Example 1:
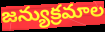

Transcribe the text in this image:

జన్యుక్రమాల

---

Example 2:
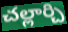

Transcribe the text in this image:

చల్లార్చి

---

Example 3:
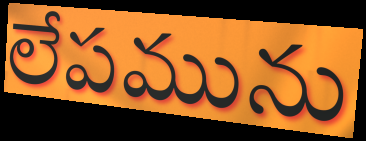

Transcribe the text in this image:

లేపమును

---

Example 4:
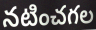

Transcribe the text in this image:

నటించగల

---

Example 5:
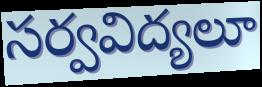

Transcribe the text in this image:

సర్వవిద్యలూ